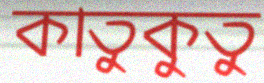
কাতুকুতু